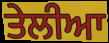
ਤੇਲੀਆ